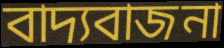
বাদ্যবাজনা